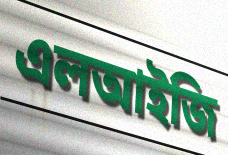
এলআইজি